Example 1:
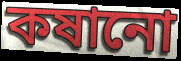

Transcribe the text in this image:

কষানো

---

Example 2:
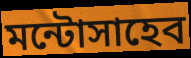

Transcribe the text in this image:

মন্টোসাহেব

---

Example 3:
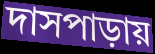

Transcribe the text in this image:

দাসপাড়ায়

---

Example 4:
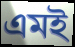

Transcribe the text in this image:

এমই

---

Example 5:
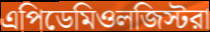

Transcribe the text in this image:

এপিডেমিওলজিস্টরা